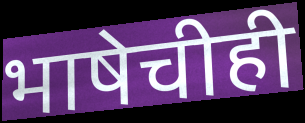
भाषेचीही